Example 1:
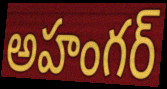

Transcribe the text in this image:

అహంగర్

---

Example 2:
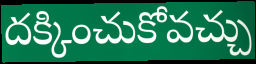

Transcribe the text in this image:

దక్కించుకోవచ్చు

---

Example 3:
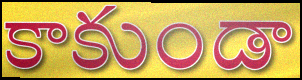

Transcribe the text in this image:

కాకుండా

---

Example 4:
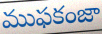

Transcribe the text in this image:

ముఫకంజా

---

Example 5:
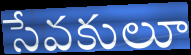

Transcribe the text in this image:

సేవకులూ